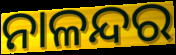
ନାଳନ୍ଦର